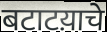
बटाटय़ाचे